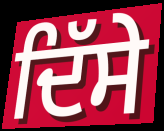
ਦਿੱਸੇ